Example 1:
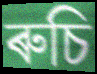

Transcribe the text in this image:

ৰুচি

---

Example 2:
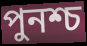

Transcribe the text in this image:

পুনশ্চ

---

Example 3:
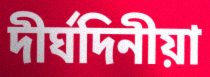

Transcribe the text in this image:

দীৰ্ঘদিনীয়া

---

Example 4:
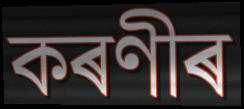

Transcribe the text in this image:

কৰণীৰ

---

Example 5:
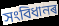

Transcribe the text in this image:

সংবিধানৰ